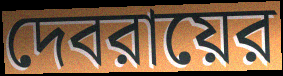
দেবরায়ের